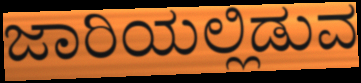
ಜಾರಿಯಲ್ಲಿಡುವ